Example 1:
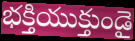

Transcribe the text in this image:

భక్తియుక్తుండై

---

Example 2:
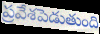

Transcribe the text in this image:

ప్రవేశపెడుతుంది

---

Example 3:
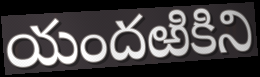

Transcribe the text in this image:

యందఱికిని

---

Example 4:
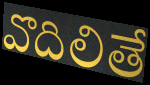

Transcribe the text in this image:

వొదిలితే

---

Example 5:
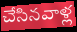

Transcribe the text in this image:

చేసినవాళ్ల